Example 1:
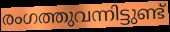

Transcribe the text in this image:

രംഗത്തുവന്നിട്ടുണ്ട്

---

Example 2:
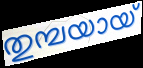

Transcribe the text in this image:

തുമ്പയായ്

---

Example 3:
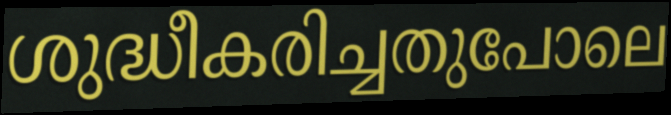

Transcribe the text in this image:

ശുദ്ധീകരിച്ചതുപോലെ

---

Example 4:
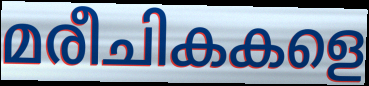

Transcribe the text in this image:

മരീചികകളെ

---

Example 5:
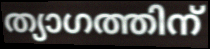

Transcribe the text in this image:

ത്യാഗത്തിന്